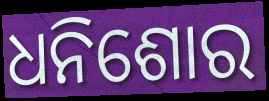
ଧନିଶୋର